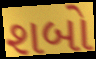
શબો